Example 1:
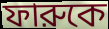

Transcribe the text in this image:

ফাৰুকে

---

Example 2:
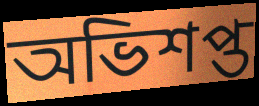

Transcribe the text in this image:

অভিশপ্ত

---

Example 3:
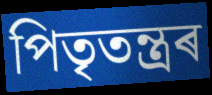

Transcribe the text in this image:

পিতৃতন্ত্ৰৰ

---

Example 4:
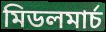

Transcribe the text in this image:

মিডলমাৰ্চ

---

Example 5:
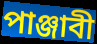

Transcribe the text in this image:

পাঞ্জাবী